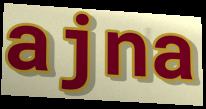
ajna